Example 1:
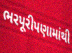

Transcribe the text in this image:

ભરપૂરીપણામાંથી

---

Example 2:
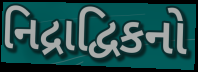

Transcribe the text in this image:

નિદ્રાદ્વિકનો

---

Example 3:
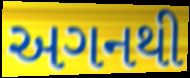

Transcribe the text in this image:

અગનથી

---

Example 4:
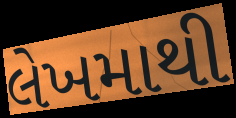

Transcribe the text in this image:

લેખમાથી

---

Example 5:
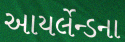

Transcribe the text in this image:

આયર્લેન્ડના